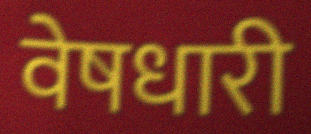
वेषधारी